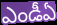
ఎండీఏ